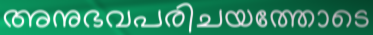
അനുഭവപരിചയത്തോടെ